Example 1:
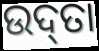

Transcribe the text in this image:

ଉଦ୍‌ତା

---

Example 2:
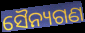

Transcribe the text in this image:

ସୈନ୍ୟଗଣ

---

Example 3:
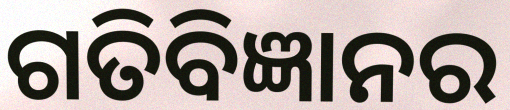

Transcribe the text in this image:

ଗତିବିଜ୍ଞାନର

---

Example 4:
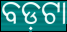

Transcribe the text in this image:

ବଡ଼ଟା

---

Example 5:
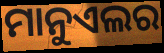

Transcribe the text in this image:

ମାନୁଏଲର